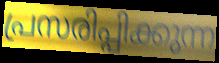
പ്രസരിപ്പിക്കുന്ന